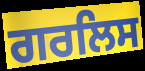
ਗਰਲਿਸ